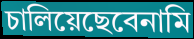
চালিয়েছেবেনামি